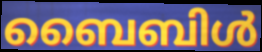
ബൈബിൾ